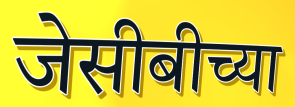
जेसीबीच्या